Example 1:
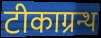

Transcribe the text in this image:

टीकाग्रन्थ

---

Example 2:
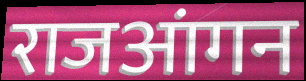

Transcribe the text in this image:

राजआंगन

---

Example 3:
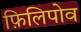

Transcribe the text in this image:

फ़िलिपोव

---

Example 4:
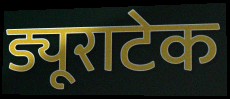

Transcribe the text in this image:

ड्यूराटेक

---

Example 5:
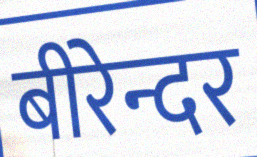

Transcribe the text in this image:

बीरेन्दर